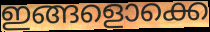
ഇങ്ങളൊക്കെ